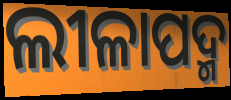
ଲୀଳାପଦ୍ମ